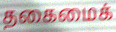
தகைமைக்